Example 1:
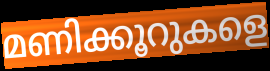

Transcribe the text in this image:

മണിക്കൂറുകളെ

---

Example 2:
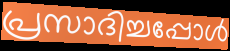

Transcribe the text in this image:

പ്രസാദിച്ചപ്പോൾ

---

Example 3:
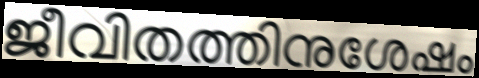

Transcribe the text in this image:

ജീവിതത്തിനുശേഷം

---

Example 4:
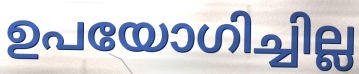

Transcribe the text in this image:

ഉപയോഗിച്ചില്ല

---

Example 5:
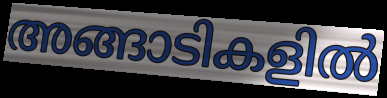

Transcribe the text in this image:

അങ്ങാടികളിൽ